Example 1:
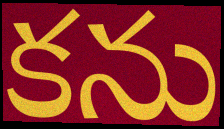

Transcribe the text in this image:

కను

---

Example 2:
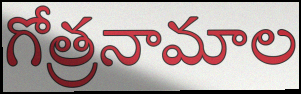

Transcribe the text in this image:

గోత్రనామాల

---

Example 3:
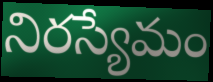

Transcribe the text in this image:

నిరస్యేమం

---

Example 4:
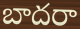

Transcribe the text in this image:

బాదరా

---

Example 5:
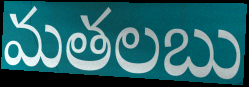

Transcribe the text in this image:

మతలబు